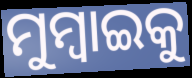
ମୁମ୍ୱାଇକୁ